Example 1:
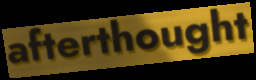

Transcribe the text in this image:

afterthought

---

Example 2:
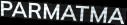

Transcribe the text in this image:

PARMATMA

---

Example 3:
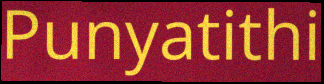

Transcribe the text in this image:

Punyatithi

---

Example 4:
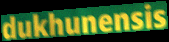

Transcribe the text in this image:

dukhunensis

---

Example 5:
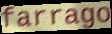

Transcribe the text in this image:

farrago